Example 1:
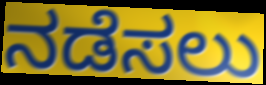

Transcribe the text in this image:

ನಡೆಸಲು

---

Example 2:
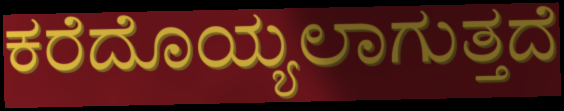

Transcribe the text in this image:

ಕರೆದೊಯ್ಯಲಾಗುತ್ತದೆ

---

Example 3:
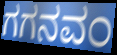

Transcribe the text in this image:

ಗಗನವಂ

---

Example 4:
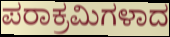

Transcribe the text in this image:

ಪರಾಕ್ರಮಿಗಳಾದ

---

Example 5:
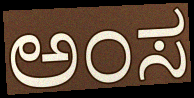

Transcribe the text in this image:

ಅಂಸ